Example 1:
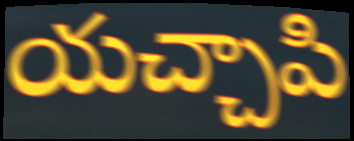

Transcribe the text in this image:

యచ్చాపి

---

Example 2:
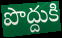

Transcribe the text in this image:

పొద్దుకి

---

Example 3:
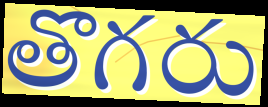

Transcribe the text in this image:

తొగరు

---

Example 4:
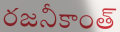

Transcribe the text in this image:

రజనీకాంత్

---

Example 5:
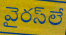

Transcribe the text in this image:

వైరస్‌లే